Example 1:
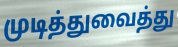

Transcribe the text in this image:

முடித்துவைத்து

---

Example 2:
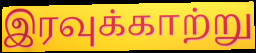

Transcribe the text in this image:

இரவுக்காற்று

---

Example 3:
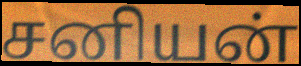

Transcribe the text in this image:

சனியன்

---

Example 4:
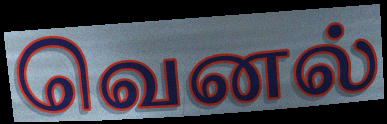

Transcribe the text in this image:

வெனல்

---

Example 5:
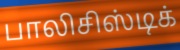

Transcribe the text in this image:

பாலிசிஸ்டிக்